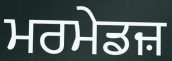
ਮਰਮੇਡਜ਼